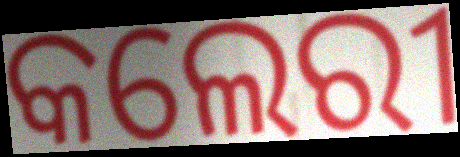
କଲେରୀ